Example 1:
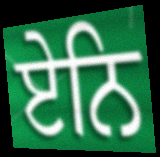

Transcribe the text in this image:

ਏਨਿ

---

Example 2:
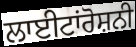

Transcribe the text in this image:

ਲਾਈਟਾਂਰੋਸ਼ਨੀ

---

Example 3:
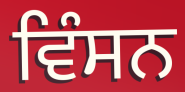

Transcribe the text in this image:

ਵਿੰਸਨ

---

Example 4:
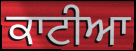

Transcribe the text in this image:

ਕਾਟੀਆ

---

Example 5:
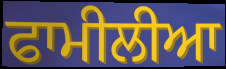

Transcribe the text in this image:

ਫਾਮੀਲੀਆ